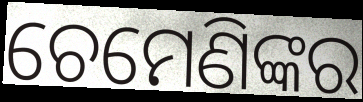
ଚେମେଣିଙ୍କର